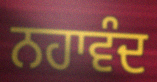
ਨਹਾਵੰਦ